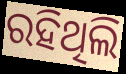
ରହିଥିଲି